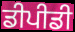
ਡੀਪੀਡੀ